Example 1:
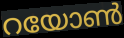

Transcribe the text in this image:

റയോൺ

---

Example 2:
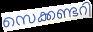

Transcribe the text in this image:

സെക്കണ്ടറി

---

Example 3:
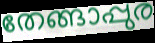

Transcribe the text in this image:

തേങ്ങാപ്പുര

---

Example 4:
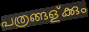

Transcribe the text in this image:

പത്രങ്ങള്ക്കും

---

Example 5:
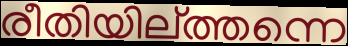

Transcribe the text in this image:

രീതിയില്ത്തന്നെ